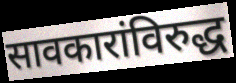
सावकारांविरुद्ध